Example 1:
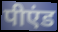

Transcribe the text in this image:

पीएंड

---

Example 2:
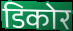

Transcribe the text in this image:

डिकोर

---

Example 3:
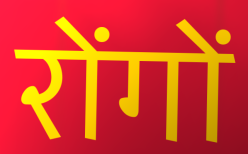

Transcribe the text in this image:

रोंगों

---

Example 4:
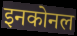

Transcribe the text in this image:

इनकोनल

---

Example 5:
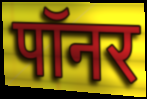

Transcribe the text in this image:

पॉनर